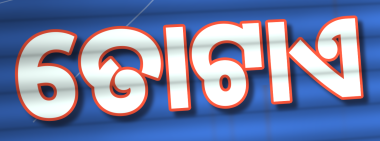
ତୋଟାଏ